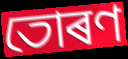
তোৰণ